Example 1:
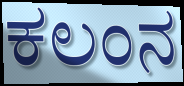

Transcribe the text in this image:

ಕಲಂನ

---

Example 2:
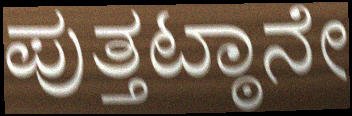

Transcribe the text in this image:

ಪುತ್ತಟ್ಠಾನೇ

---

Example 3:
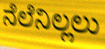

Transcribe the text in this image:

ನೆಲೆನಿಲ್ಲಲು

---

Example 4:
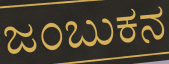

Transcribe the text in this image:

ಜಂಬುಕನ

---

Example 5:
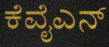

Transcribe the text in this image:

ಕೆವೈಎನ್